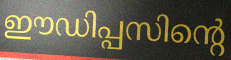
ഈഡിപ്പസിന്റെ